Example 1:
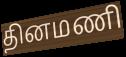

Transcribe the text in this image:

தினமணி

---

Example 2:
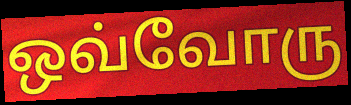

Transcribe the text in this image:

ஒவ்வோரு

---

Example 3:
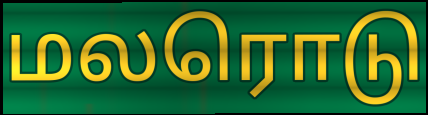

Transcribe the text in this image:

மலரொடு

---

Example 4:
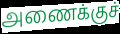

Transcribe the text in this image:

அணைக்குச்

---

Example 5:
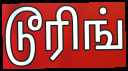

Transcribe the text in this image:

டூரிங்